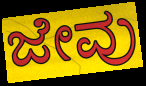
ಜೇವು